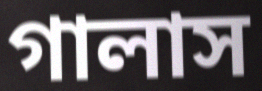
গালাস